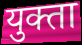
युक्ता